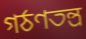
গঠণতন্ত্র